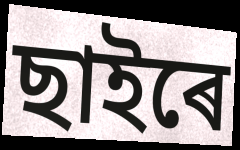
ছাইৰে